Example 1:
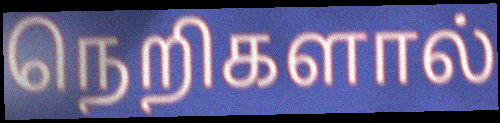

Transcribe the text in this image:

நெறிகளால்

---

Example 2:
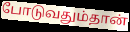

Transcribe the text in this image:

போடுவதும்தான்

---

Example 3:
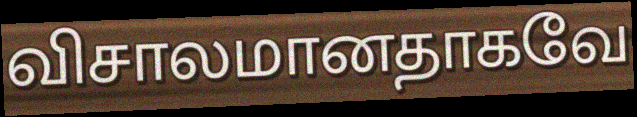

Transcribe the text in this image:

விசாலமானதாகவே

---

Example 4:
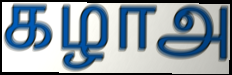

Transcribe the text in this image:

கழாஅ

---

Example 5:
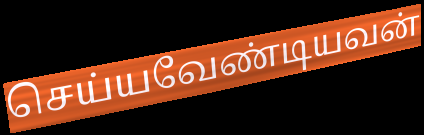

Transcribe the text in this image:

செய்யவேண்டியவன்